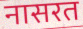
नासरत